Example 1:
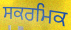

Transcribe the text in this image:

ਸਕਰਮਿਕ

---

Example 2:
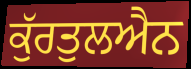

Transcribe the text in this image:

ਕੁੱਰਤੁਲਐਨ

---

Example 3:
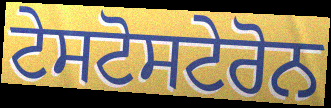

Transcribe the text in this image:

ਟੇਸਟੋਸਟੇਰੋਨ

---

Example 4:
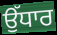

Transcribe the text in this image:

ਉੱਧਾਰ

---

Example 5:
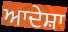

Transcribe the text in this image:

ਆਦੇਸ਼ਾ